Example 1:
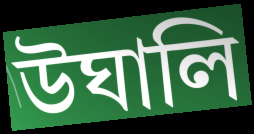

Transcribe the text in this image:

উঘালি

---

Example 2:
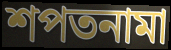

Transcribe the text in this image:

শপতনামা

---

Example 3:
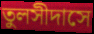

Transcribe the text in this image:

তুলসীদাসে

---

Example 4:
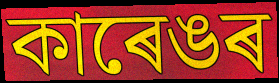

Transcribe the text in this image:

কাৰেঙৰ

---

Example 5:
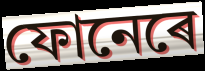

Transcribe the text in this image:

ফোনেৰে